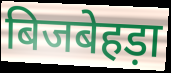
बिजबेहड़ा